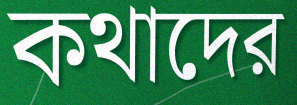
কথাদের